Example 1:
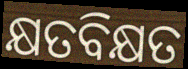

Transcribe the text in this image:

କ୍ଷତବିକ୍ଷତ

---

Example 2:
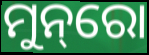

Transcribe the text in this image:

ମୁନ୍‌ରୋ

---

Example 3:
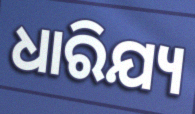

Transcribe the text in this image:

ଧାରିଯ୍ୟ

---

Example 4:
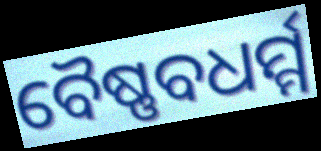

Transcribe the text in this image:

ବୈଷ୍ଣବଧର୍ମ୍ମ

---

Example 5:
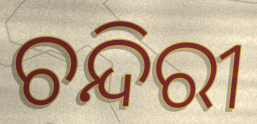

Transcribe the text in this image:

ଚନ୍ଦିରୀ